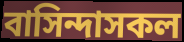
বাসিন্দাসকল